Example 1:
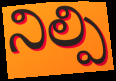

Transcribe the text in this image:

నిల్పి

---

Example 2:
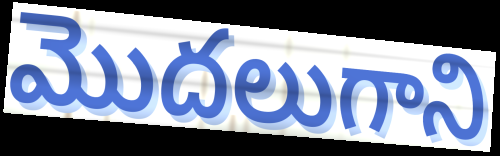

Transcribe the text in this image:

మొదలుగాని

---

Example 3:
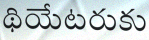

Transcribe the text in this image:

థియేటరుకు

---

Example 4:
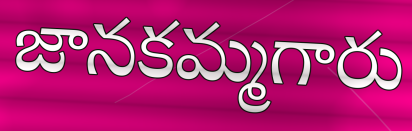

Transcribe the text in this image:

జానకమ్మగారు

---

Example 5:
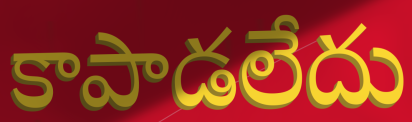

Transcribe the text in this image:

కాపాడలేదు